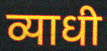
व्याधी